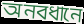
অনবধানে